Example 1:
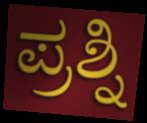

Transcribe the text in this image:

ಪ್ರಶ್ನಿ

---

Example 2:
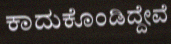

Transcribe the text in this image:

ಕಾದುಕೊಂಡಿದ್ದೇವೆ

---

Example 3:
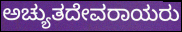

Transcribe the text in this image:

ಅಚ್ಯುತದೇವರಾಯರು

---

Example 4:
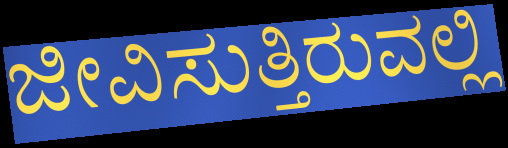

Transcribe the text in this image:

ಜೀವಿಸುತ್ತಿರುವಲ್ಲಿ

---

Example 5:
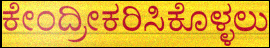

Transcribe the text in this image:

ಕೇಂದ್ರೀಕರಿಸಿಕೊಳ್ಳಲು